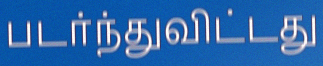
படர்ந்துவிட்டது